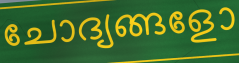
ചോദ്യങ്ങളോ